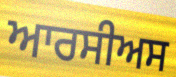
ਆਰਸੀਅਸ